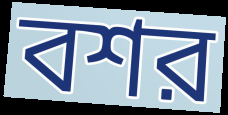
বশর